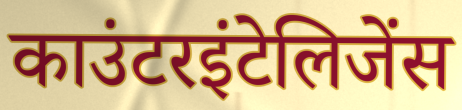
काउंटरइंटेलिजेंस